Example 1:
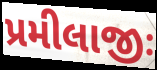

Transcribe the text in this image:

પ્રમીલાજીઃ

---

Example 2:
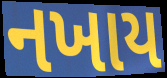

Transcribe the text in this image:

નખાય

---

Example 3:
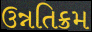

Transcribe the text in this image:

ઉન્નતિક્રમ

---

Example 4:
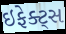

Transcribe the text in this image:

ઇફેક્ટ્સ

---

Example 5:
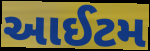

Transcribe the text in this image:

આઈટમ